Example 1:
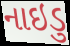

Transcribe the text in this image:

નાઇડુ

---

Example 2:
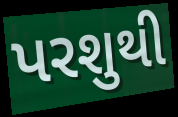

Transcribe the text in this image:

પરશુથી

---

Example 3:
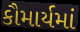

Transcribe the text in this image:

કૌમાર્યમાં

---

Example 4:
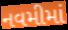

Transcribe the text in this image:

નવમીમાં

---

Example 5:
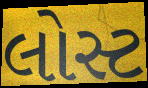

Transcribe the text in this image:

લોસ્ટ